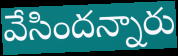
వేసిందన్నారు